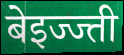
बेइज्ज्ती